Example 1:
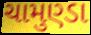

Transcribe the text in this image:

ચામુણ્ડા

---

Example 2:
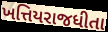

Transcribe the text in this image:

ખત્તિયરાજધીતા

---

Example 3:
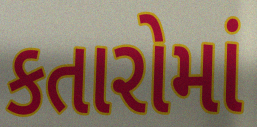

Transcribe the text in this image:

કતારોમાં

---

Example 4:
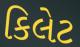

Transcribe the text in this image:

કિલેટ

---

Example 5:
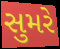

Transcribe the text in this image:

સુમરે